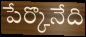
పేర్కొనేది